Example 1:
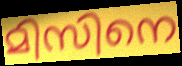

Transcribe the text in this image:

മിസിനെ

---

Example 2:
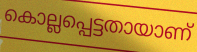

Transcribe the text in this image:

കൊല്ലപ്പെട്ടതായാണ്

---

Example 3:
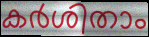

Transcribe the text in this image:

കർശിതാം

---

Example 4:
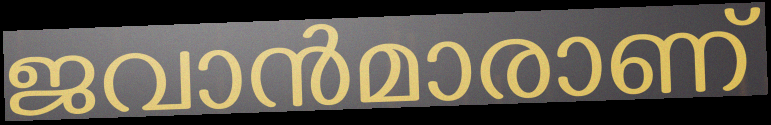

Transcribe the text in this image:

ജവാൻമാരാണ്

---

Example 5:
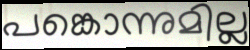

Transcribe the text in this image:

പങ്കൊന്നുമില്ല